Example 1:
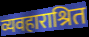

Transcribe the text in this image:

व्यवहाराश्रित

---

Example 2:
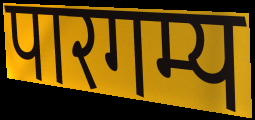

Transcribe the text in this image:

पारगम्य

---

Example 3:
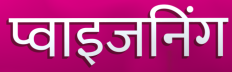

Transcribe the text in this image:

प्वाइजनिंग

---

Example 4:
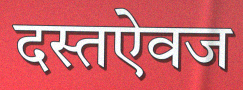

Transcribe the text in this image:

दस्तऐवज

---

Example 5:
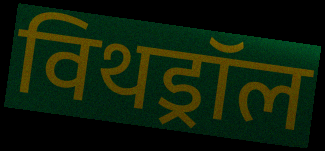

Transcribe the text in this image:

विथड्रॉल